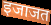
इजाजत